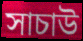
সাচাউ